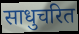
साधुचरित